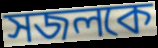
সজলকে